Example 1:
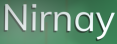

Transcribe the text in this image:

Nirnay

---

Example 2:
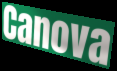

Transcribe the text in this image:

Canova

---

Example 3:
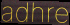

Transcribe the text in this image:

adhre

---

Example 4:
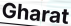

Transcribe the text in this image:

Gharat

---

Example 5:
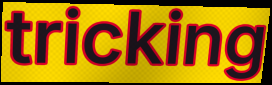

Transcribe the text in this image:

tricking